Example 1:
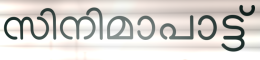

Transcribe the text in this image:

സിനിമാപാട്ട്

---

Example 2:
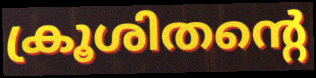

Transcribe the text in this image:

ക്രൂശിതന്റെ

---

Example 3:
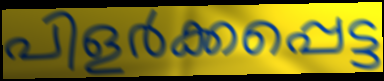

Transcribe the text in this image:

പിളർക്കപ്പെട്ട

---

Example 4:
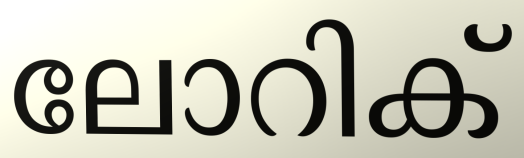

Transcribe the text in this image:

ലോറിക്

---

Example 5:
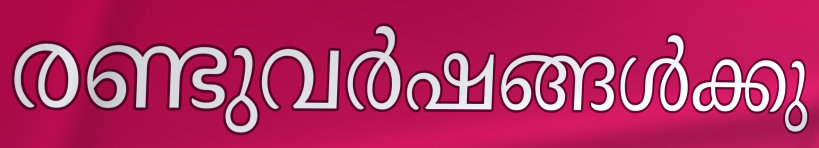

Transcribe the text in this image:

രണ്ടുവർഷങ്ങൾക്കു